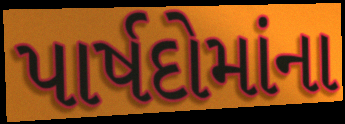
પાર્ષદોમાંના